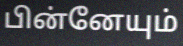
பின்னேயும்